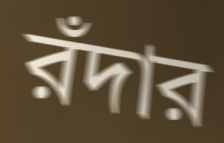
রঁদার